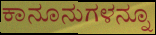
ಕಾನೂನುಗಳನ್ನೂ